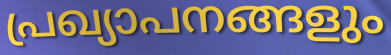
പ്രഖ്യാപനങ്ങളും